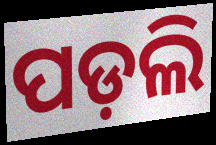
ପଡ଼ଲି